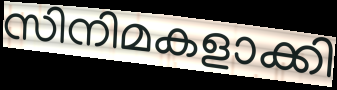
സിനിമകളാക്കി